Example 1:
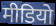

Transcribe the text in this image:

मीडियो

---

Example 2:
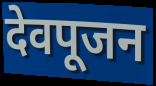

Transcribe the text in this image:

देवपूजन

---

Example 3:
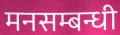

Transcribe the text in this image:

मनसम्बन्धी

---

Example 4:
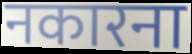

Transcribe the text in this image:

नकारना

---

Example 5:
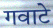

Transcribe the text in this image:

गवाटे